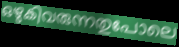
ഒഴുകിവരുന്നതുപോലെ